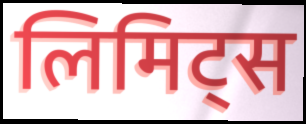
लिमिट्स